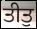
ਤੀਤੁ